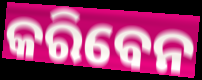
କରିବେନ